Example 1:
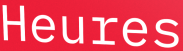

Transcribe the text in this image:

Heures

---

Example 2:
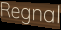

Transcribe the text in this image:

Regnal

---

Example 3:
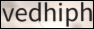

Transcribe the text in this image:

vedhiph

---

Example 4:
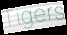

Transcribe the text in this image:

Tigers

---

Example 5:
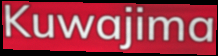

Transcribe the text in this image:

Kuwajima